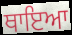
ਥਾਇਆ